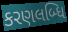
કરણલબ્ધિ